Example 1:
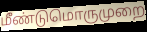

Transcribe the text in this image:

மீண்டுமொருமுறை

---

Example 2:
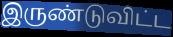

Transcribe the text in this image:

இருண்டுவிட்ட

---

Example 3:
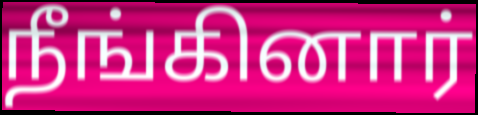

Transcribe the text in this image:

நீங்கினார்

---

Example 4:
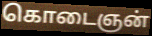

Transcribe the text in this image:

கொடைஞன்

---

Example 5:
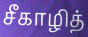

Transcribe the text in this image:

சீகாழித்